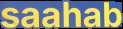
saahab